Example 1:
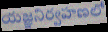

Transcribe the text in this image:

యజ్ఞనిర్వహణలో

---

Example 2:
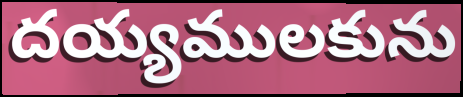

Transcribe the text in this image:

దయ్యములకును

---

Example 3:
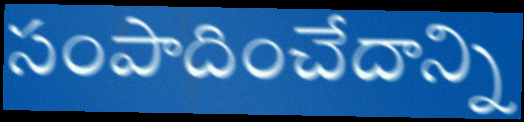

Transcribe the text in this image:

సంపాదించేదాన్ని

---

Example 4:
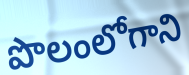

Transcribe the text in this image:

పొలంలోగాని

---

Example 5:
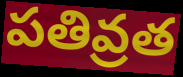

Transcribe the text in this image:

పతివ్రత